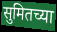
सुमितच्या